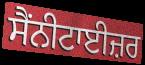
ਸੈਂਨੀਟਾਈਜ਼ਰ